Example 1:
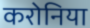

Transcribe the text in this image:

करोनिया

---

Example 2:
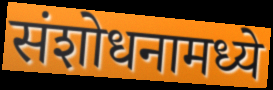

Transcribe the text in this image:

संशोधनामध्ये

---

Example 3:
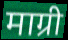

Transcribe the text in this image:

माग्री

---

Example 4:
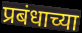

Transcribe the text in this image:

प्रबंधाच्या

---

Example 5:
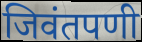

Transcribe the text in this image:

जिवंतपणी